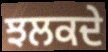
ਝਲਕਦੇ